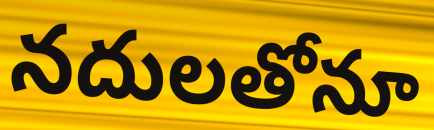
నదులతోనూ